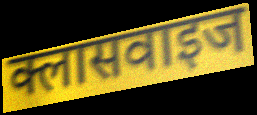
क्लासवाइज